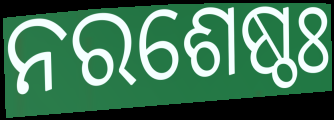
ନରଶେଷ୍ଠଃ